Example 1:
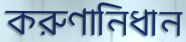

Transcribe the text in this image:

করুণানিধান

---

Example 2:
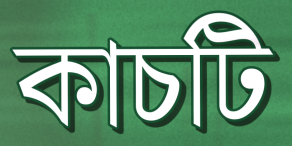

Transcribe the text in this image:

কাচটি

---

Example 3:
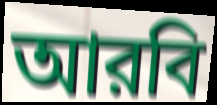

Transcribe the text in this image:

আরবি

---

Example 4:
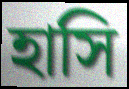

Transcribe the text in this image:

হাসি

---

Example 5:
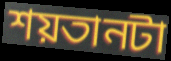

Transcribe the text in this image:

শয়তানটা